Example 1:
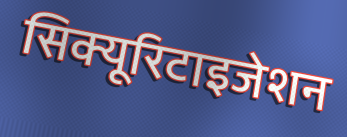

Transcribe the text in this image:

सिक्यूरिटाइजेशन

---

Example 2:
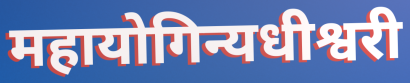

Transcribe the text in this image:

महायोगिन्यधीश्वरी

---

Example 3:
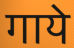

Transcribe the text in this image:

गाये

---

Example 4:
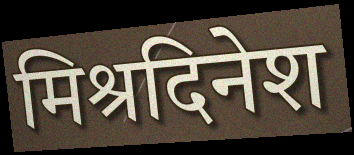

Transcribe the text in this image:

मिश्रदिनेश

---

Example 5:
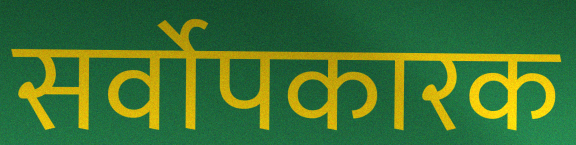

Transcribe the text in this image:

सर्वोपकारक